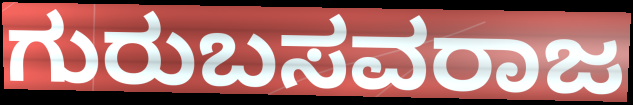
ಗುರುಬಸವರಾಜ